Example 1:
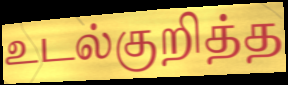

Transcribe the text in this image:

உடல்குறித்த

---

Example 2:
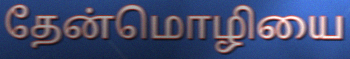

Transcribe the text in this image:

தேன்மொழியை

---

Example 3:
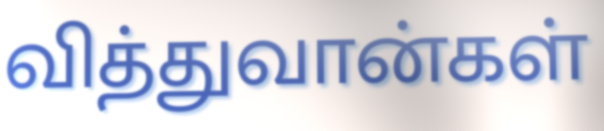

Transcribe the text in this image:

வித்துவான்கள்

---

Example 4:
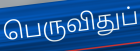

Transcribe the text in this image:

பெருவிதுப்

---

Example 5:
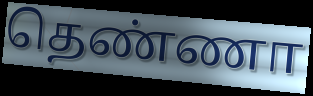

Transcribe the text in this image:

தெண்ணா